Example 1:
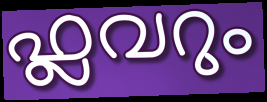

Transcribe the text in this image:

ഫ്ലവറും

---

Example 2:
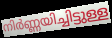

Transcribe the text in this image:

നിർണ്ണയിച്ചിട്ടുള്ള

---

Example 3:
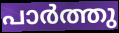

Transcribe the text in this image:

പാർത്തു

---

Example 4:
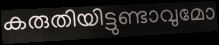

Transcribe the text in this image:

കരുതിയിട്ടുണ്ടാവുമോ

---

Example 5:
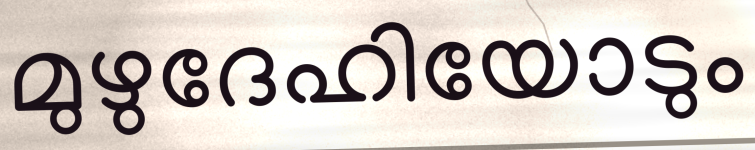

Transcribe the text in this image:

മുഴുദേഹിയോടും